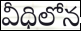
వీధిలోన